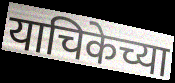
याचिकेच्या